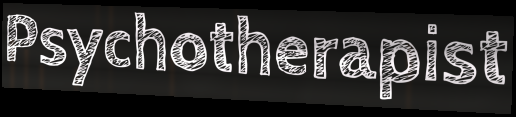
Psychotherapist